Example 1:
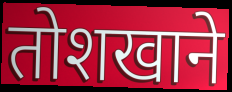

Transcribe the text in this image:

तोशखाने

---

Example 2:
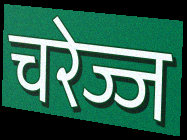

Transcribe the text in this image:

चरेज्ज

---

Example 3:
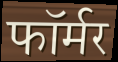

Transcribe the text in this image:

फॉर्मर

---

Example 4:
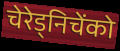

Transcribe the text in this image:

चेरेड्निचेंको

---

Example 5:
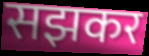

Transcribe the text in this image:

सझकर